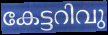
കേട്ടറിവു